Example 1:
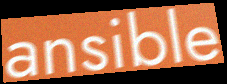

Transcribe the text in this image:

ansible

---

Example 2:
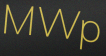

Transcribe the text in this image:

MWp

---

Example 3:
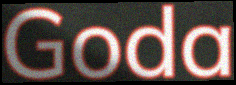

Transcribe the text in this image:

Goda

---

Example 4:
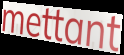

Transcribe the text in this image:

mettant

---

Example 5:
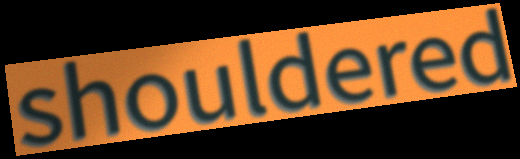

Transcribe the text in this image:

shouldered